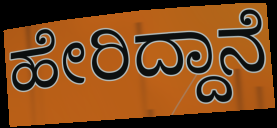
ಹೇರಿದ್ದಾನೆ